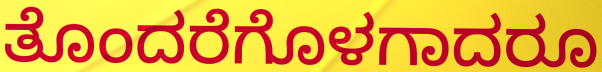
ತೊಂದರೆಗೊಳಗಾದರೂ